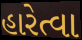
હારેત્વા